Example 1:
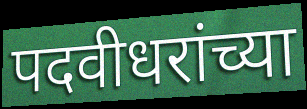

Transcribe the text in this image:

पदवीधरांच्या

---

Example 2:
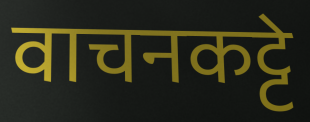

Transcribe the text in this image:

वाचनकट्टे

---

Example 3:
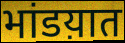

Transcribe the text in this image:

भांडय़ात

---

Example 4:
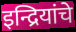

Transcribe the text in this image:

इन्द्रियांचे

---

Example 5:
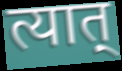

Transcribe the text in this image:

त्यात्